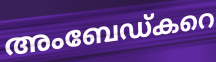
അംബേഡ്കറെ